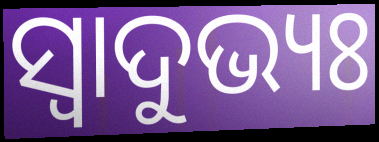
ସ୍ବାଦୁଭ୍ୟଃ